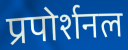
प्रपोर्शनल